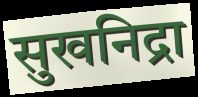
सुखनिद्रा